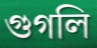
গুগলি